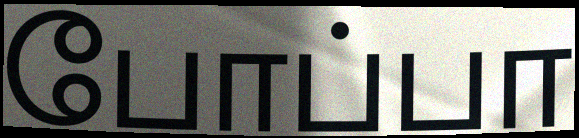
போப்பா